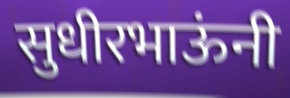
सुधीरभाऊंनी